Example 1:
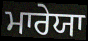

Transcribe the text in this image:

ਮਾਰੇਯਾ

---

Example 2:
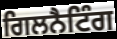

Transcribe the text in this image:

ਗਿਲਨੈਟਿੰਗ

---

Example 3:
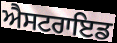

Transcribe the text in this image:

ਐਸਟਰਾਇਡ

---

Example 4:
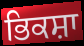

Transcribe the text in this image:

ਭਿਕਸ਼ਾ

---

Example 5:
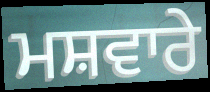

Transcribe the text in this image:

ਮਸ਼ਵਾਰੇ